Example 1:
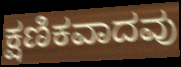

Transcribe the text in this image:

ಕ್ಷಣಿಕವಾದವು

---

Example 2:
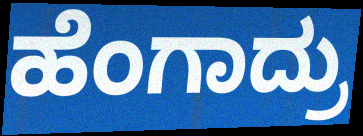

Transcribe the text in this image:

ಹೆಂಗಾದ್ರು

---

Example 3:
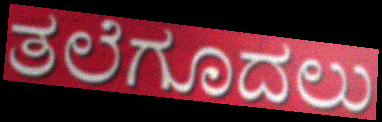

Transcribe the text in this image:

ತಲೆಗೂದಲು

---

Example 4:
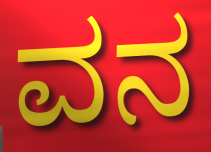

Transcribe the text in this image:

ವನ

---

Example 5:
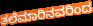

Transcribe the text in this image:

ತಲೆಮಾರಿನವರಿಂದ